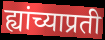
ह्यांच्याप्रती